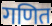
गणित